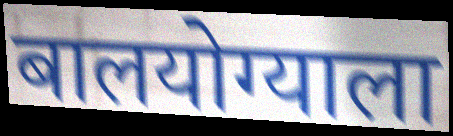
बालयोग्याला